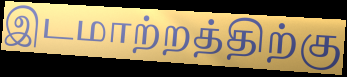
இடமாற்றத்திற்கு